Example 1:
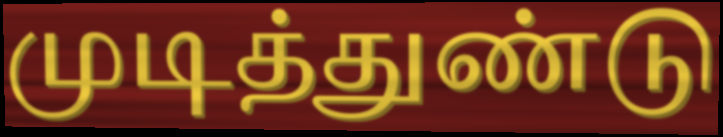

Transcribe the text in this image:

முடித்துண்டு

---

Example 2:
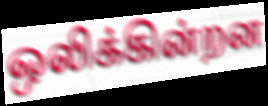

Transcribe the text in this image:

ஒலிக்கின்றன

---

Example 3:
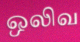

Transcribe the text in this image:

ஒலிவ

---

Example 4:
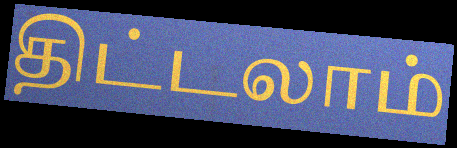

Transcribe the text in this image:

திட்டலாம்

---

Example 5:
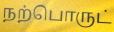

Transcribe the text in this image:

நற்பொருட்